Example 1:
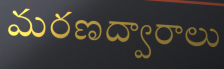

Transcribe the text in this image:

మరణద్వారాలు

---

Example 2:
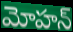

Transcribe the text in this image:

మోహన్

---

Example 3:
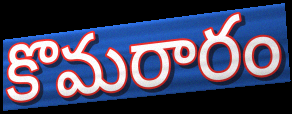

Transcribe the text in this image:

కొమరారం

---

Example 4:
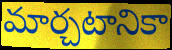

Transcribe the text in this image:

మార్చటానికా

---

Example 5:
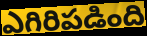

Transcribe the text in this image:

ఎగిరిపడింది